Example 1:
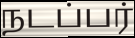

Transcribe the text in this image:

நடப்பர்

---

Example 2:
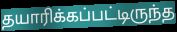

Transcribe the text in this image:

தயாரிக்கப்பட்டிருந்த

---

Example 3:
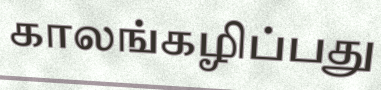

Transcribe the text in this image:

காலங்கழிப்பது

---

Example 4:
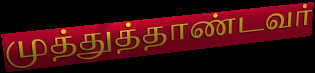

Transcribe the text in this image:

முத்துத்தாண்டவர்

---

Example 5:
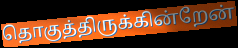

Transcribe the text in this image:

தொகுத்திருக்கின்றேன்